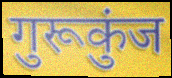
गुरूकुंज